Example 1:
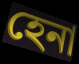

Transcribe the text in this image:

হেনা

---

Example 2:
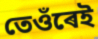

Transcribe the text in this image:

তেওঁৰেই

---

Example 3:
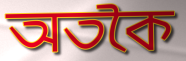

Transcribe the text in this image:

অতকৈ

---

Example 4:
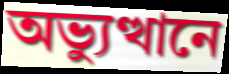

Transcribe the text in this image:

অভ্য়ুত্থানে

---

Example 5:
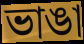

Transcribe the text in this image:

ভাঙা